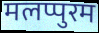
मलप्पुरम